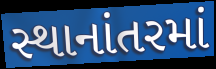
સ્થાનાંતરમાં